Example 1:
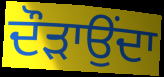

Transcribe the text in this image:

ਦੌੜਾਉਂਦਾ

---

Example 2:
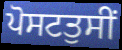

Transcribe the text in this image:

ਪੋਸਟਤੁਸੀਂ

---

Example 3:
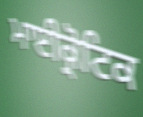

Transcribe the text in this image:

ਮਾਈਕ੍ਰੋਟਿਕ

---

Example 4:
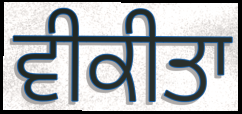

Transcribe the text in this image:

ਵੀਕੀਤਾ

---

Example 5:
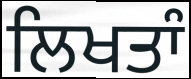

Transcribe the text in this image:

ਲਿਖਤਾੰ